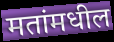
मतांमधील